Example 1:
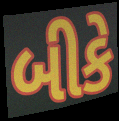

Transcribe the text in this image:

બીકે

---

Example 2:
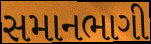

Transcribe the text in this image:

સમાનભાગી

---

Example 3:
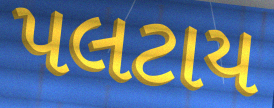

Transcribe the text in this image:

પલટાય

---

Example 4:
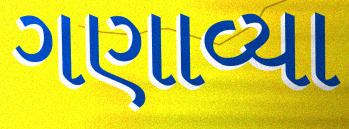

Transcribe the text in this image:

ગણાવ્યા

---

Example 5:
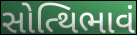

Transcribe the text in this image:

સોત્થિભાવં